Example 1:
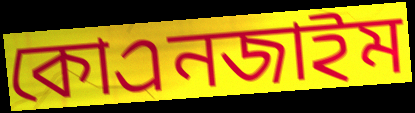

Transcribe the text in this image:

কোএনজাইম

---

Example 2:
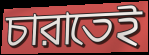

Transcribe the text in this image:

চারাতেই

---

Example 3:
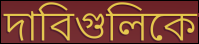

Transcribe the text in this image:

দাবিগুলিকে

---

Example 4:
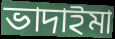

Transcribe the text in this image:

ভাদাইমা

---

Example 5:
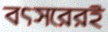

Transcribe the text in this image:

বৎসরেরই